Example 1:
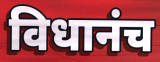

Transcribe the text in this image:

विधानंच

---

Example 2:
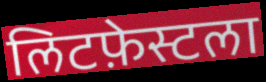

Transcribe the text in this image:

लिटफ़ेस्टला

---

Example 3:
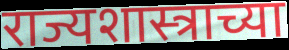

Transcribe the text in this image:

राज्यशास्त्राच्या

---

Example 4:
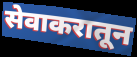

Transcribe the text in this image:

सेवाकरातून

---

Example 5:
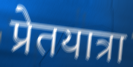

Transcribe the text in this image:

प्रेतयात्रा